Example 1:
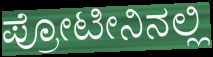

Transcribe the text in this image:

ಪ್ರೋಟೀನಿನಲ್ಲಿ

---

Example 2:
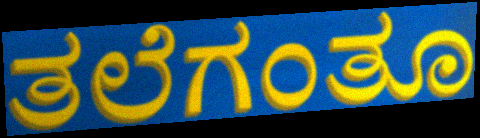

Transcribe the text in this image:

ತಲೆಗಂತೂ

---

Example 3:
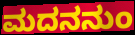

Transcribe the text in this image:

ಮದನನುಂ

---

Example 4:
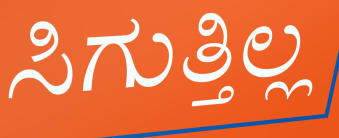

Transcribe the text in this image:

ಸಿಗುತ್ತಿಲ್ಲ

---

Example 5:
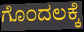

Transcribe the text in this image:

ಗೊಂದಲಕ್ಕೆ